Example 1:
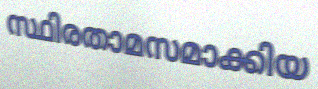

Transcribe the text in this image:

സ്ഥിരതാമസമാക്കിയ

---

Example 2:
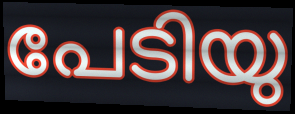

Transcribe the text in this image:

പേടിയു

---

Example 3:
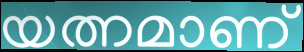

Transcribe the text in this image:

യത്നമാണ്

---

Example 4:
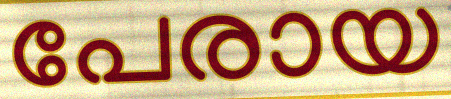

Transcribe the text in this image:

പേരായ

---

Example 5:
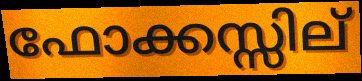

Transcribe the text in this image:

ഫോക്കസ്സില്